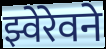
झ्वेरेवने